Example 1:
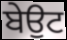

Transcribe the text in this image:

ਬੇਉਟ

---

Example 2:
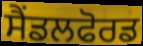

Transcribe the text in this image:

ਸੈਂਡਲਫੋਰਡ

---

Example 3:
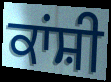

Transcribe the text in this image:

ਕਾਂਸ਼ੀ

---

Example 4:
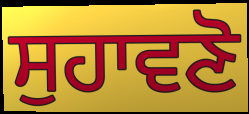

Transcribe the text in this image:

ਸੁਹਾਵਣੋ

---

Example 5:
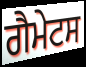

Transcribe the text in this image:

ਗੈਮੇਟਸ